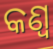
କଣ୍ୱ